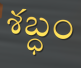
శబ్ధం